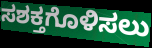
ಸಶಕ್ತಗೊಳಿಸಲು